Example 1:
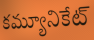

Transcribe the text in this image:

కమ్యూనికేట్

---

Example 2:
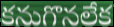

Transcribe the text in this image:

కనుగొనలేక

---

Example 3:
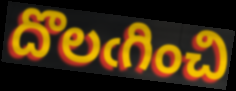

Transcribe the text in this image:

దొలఁగించి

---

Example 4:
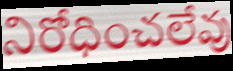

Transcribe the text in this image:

నిరోధించలేవు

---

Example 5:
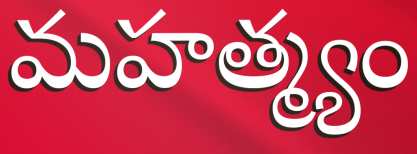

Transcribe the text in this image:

మహత్మ్యం